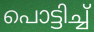
പൊട്ടിച്ച്